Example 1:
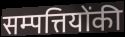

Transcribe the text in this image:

सम्पत्तियोंकी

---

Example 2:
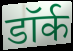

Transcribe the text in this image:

डॉर्क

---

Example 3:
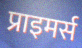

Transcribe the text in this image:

प्राइमर्स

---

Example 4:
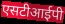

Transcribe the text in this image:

एसटीआईपी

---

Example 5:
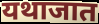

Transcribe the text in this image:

यथाजात